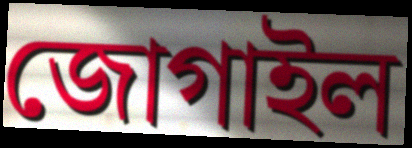
জোগাইল